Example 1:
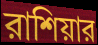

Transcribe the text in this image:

রাশিয়ার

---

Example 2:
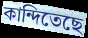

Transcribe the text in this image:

কান্দিতেছে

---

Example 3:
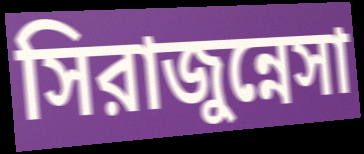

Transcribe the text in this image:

সিরাজুন্নেসা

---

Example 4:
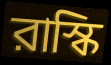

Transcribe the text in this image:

রাস্কি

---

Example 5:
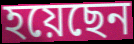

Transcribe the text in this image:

হয়েছেন